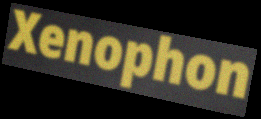
Xenophon